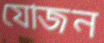
যোজন